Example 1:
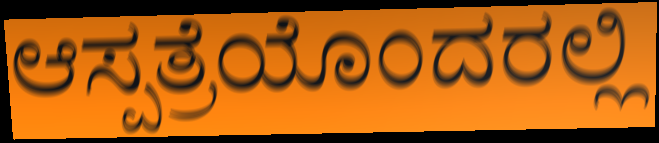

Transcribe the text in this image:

ಆಸ್ಪತ್ರೆಯೊಂದರಲ್ಲಿ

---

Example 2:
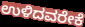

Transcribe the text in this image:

ಉಳಿದವರೇಕೆ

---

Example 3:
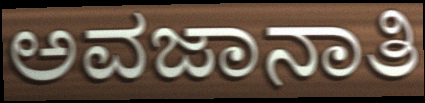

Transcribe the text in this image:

ಅವಜಾನಾತಿ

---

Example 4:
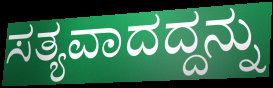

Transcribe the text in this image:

ಸತ್ಯವಾದದ್ದನ್ನು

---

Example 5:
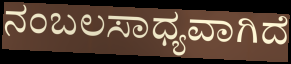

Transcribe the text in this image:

ನಂಬಲಸಾಧ್ಯವಾಗಿದೆ